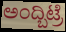
ಅಂದ್ಬಿಟ್ರೆ